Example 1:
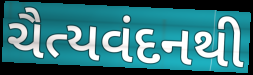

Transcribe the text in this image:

ચૈત્યવંદનથી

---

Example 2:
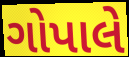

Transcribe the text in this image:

ગોપાલે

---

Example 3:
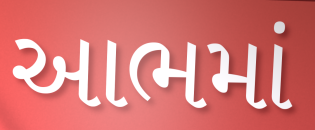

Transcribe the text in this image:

આભમાં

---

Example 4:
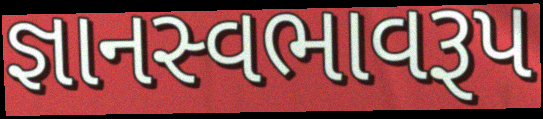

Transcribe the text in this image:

જ્ઞાનસ્વભાવરૂપ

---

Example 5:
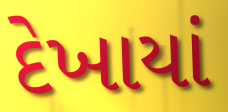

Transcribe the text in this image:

દેખાયાં